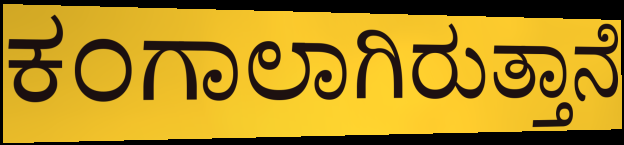
ಕಂಗಾಲಾಗಿರುತ್ತಾನೆ